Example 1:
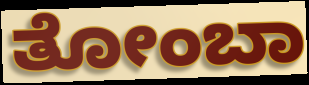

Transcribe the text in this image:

ತೋಂಬಾ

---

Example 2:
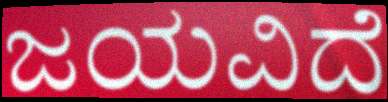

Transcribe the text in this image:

ಜಯವಿದೆ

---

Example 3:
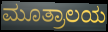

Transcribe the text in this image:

ಮೂತ್ರಾಲಯ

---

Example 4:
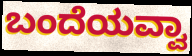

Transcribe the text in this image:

ಬಂದೆಯವ್ವಾ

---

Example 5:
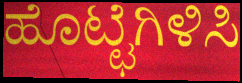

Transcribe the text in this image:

ಹೊಟ್ಟೆಗಿಳಿಸಿ